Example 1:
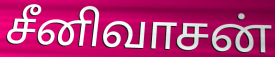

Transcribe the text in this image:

சீனிவாசன்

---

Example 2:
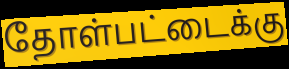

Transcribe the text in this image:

தோள்பட்டைக்கு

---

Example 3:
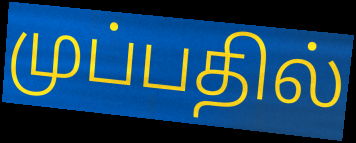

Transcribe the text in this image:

முப்பதில்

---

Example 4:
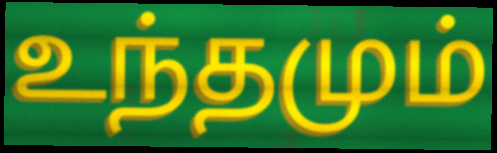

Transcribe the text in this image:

உந்தமும்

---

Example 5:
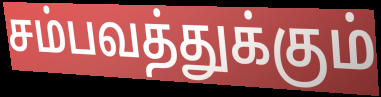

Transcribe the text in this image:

சம்பவத்துக்கும்